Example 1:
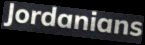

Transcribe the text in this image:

Jordanians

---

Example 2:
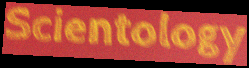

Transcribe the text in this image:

Scientology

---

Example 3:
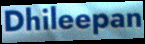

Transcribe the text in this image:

Dhileepan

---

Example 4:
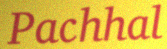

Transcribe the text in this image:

Pachhal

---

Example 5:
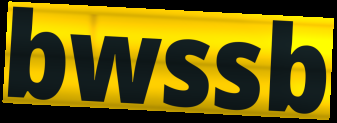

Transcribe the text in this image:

bwssb